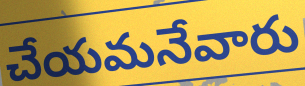
చేయమనేవారు